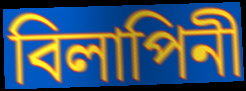
বিলাপিনী